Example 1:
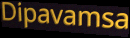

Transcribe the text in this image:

Dipavamsa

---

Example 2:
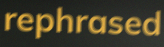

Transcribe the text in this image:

rephrased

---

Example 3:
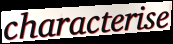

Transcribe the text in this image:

characterise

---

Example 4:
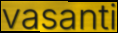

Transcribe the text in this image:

vasanti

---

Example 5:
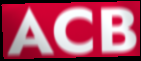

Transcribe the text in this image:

ACB